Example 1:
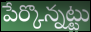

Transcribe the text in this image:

పేర్కొన్నట్టు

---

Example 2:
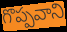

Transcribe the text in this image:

గొప్పవాని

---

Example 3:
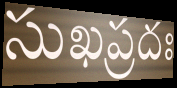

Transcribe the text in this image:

సుఖప్రదః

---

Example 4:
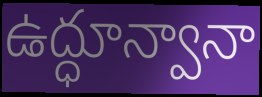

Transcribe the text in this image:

ఉద్ధూన్వానా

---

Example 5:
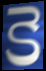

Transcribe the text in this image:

కె